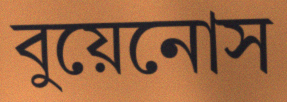
বুয়েনোস